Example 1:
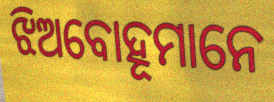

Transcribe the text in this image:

ଝିଅବୋହୂମାନେ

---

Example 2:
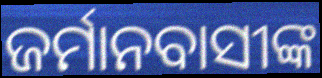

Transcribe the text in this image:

ଜର୍ମାନବାସୀଙ୍କ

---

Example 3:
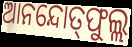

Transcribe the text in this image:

ଆନନ୍ଦୋତ୍‍ଫୁଲ୍ଲ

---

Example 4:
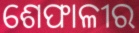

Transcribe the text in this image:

ଶେଫାଳୀର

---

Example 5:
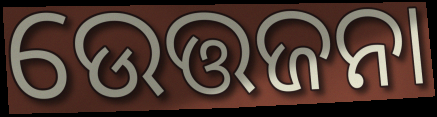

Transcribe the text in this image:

ଉେତ୍ତଜନା